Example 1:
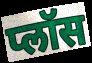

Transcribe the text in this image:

प्लॉस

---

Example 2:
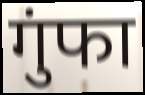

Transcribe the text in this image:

गुंफा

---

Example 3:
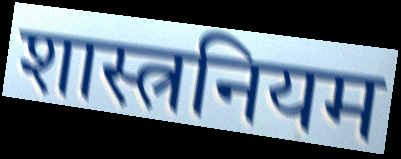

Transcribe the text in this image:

शास्त्रनियम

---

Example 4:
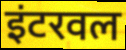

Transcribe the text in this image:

इंटरवल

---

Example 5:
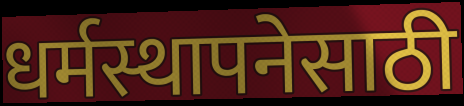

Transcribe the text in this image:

धर्मस्थापनेसाठी